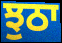
ਝੁਠਾ